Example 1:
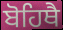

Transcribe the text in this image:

ਬੋਹਿਥੈ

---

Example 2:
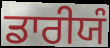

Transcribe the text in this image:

ਡਾਰੀਯੰ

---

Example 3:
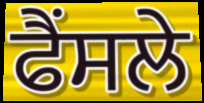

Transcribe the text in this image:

ਫੈਂਸਲੇ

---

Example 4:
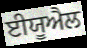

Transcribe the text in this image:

ਈਯੂਐਲ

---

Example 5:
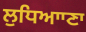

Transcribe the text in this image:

ਲੁਧਿਆਾਣਾ